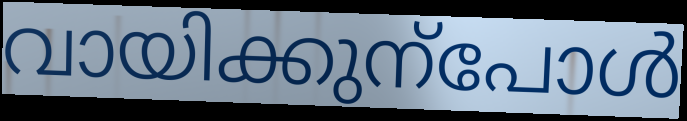
വായിക്കുന്പോൾ